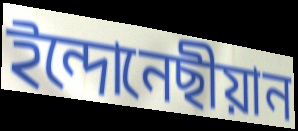
ইন্দোনেছীয়ান